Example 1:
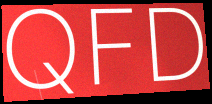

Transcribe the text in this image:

QFD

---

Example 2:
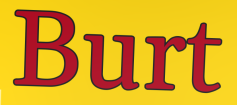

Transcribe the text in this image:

Burt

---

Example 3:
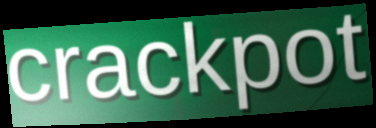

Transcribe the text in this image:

crackpot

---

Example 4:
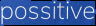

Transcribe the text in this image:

possitive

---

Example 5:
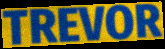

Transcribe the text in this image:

TREVOR